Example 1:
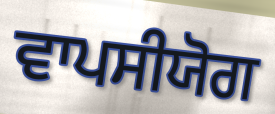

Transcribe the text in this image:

ਵਾਪਸੀਯੋਗ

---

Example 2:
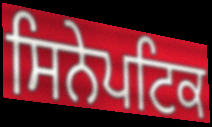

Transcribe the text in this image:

ਸਿਨੇਪਟਿਕ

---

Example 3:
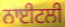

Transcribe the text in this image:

ਨਾਈਟਲੀ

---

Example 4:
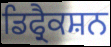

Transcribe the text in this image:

ਡਿਫ੍ਰੈਕਸ਼ਨ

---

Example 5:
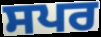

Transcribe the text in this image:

ਸਪਰ